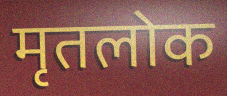
मृतलोक